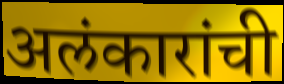
अलंकारांची